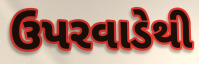
ઉપરવાડેથી